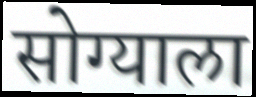
सोग्याला